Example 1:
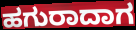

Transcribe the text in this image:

ಹಗುರಾದಾಗ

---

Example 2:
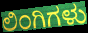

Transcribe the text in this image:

ಲಿಂಗಿಗಳು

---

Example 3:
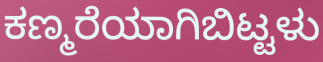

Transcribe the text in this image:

ಕಣ್ಮರೆಯಾಗಿಬಿಟ್ಟಳು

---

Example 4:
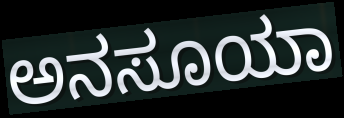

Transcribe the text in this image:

ಅನಸೂಯಾ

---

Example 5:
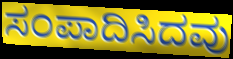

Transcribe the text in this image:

ಸಂಪಾದಿಸಿದವು